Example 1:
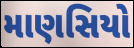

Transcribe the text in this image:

માણસિયો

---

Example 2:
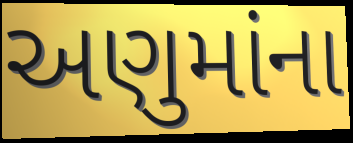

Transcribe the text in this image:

અણુમાંના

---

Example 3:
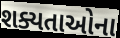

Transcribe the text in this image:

શક્યતાઓના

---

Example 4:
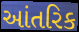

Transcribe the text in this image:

આંતરિક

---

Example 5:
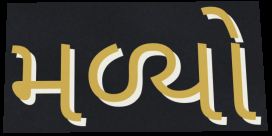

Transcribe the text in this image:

મળ્યો